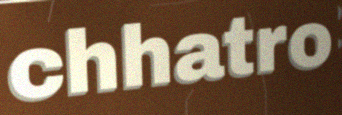
chhatro